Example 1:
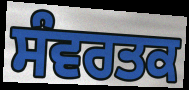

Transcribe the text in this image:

ਸੰਵਰਤਕ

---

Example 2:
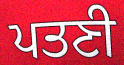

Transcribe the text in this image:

ਪਤਣੀ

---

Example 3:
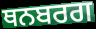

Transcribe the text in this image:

ਥਨਬਰਗ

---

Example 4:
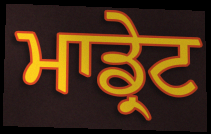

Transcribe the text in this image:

ਮਾਡ੍ਰੇਟ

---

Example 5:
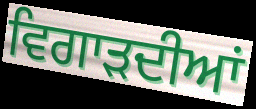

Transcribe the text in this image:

ਵਿਗਾੜਦੀਆਂ